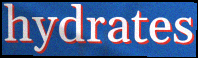
hydrates